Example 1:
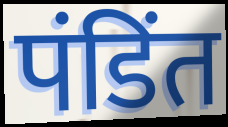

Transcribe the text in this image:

पंडिंत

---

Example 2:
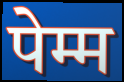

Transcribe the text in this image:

पेम्म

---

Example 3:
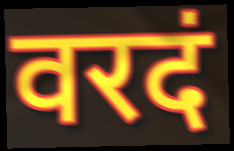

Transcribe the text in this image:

वरदं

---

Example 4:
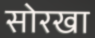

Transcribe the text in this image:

सोरखा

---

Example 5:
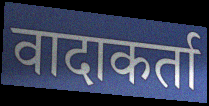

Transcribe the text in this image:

वादाकर्ता